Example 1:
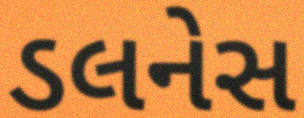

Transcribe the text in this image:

ડલનેસ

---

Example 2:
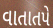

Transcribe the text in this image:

વાતાતપે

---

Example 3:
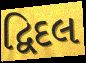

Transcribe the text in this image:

દ્વિદલ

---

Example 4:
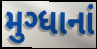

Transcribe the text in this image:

મુગ્ધાનાં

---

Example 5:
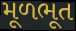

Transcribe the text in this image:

મૂળભૂત